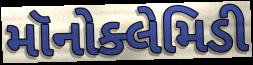
મૉનોક્લેમિડી